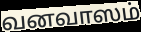
வனவாஸம்